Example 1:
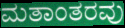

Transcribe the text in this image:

ಮತಾಂತರವು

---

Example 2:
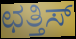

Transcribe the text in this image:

ಛತ್ತಿಸ್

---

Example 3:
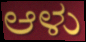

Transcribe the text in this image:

ಆಳು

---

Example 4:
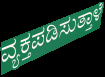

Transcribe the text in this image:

ವ್ಯಕ್ತಪಡಿಸುತ್ತಾಳೆ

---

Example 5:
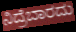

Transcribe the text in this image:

ನಿದ್ರೆಬಾರದು